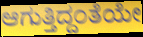
ಆಗುತ್ತಿದ್ದಂತೆಯೇ